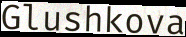
Glushkova